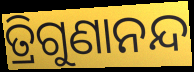
ତ୍ରିଗୁଣାନନ୍ଦ